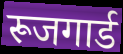
रूजगार्ड